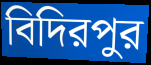
বিদিরপুর